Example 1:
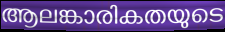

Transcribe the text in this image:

ആലങ്കാരികതയുടെ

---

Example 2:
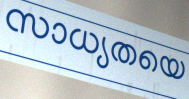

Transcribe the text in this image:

സാധ്യതയെ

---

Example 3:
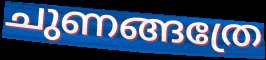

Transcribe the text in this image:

ചുണങ്ങത്രേ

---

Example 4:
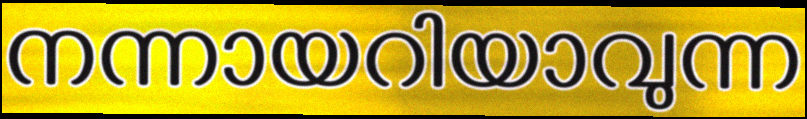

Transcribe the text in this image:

നന്നായറിയാവുന്ന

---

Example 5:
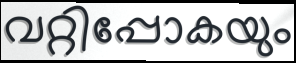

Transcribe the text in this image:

വറ്റിപ്പോകയും